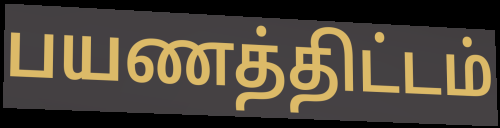
பயணத்திட்டம்